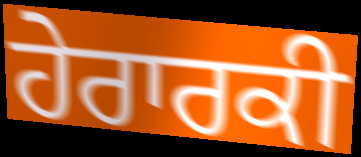
ਹੇਰਾਰਕੀ